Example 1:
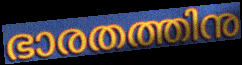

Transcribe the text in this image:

ഭാരതത്തിനു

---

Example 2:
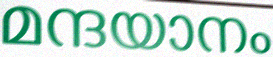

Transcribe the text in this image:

മന്ദയാനം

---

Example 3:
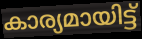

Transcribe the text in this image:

കാര്യമായിട്ട്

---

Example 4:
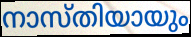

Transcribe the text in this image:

നാസ്തിയായും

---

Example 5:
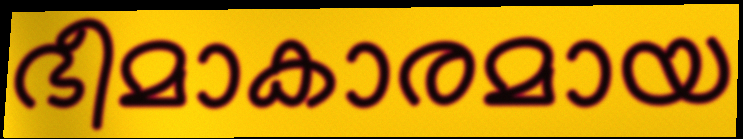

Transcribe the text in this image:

ഭീമാകാരമായ